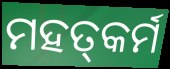
ମହତ୍‌କର୍ମ